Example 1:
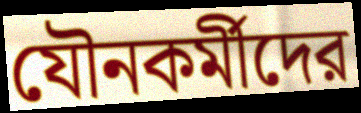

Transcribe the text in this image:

যৌনকর্মীদের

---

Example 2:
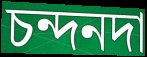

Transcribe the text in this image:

চন্দনদা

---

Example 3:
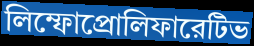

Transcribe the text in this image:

লিম্ফোপ্রোলিফারেটিভ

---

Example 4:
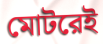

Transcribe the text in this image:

মোটরেই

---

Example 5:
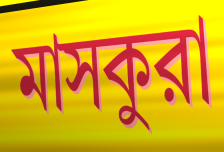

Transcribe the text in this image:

মাসকুরা